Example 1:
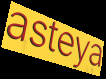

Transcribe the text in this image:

asteya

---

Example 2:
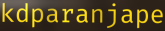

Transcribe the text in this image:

kdparanjape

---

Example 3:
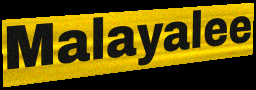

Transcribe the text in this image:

Malayalee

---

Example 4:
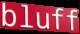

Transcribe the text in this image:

bluff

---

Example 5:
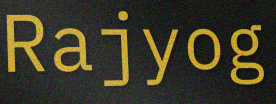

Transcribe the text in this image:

Rajyog